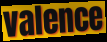
valence